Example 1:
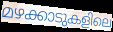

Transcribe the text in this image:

മഴക്കാടുകളിലെ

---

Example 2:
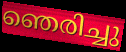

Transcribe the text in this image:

ഞെരിച്ചു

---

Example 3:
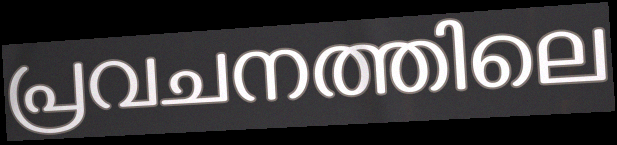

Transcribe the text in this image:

പ്രവചനത്തിലെ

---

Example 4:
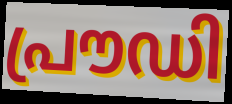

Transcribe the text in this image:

പ്രൗഡി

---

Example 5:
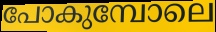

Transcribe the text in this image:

പോകുമ്പോലെ